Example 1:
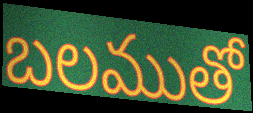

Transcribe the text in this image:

బలముతో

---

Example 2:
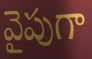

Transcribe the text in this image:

వైపుగా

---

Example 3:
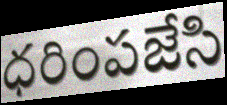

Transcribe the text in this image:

ధరింపజేసి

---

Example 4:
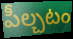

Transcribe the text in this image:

పీల్చటం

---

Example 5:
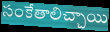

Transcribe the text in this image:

సంకేతాలిచ్చాయి